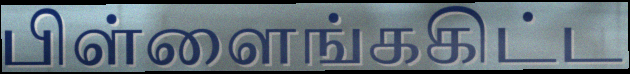
பிள்ளைங்ககிட்ட